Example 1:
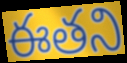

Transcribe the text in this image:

ఈతని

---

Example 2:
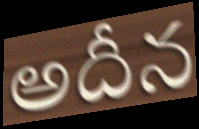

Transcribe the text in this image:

అదీన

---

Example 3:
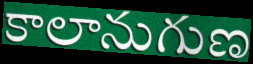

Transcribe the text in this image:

కాలానుగుణ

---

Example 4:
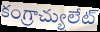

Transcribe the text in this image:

కంగ్రాచ్యులేట్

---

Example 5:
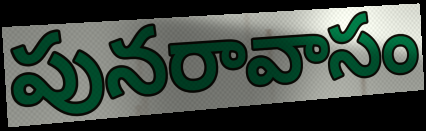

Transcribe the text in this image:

పునరావాసం